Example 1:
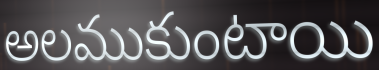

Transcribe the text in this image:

అలముకుంటాయి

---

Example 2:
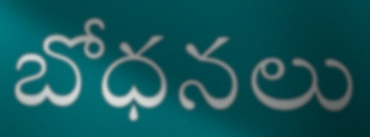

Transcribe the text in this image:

బోధనలు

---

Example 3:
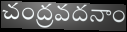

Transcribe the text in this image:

చంద్రవదనాం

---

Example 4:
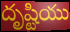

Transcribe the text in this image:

దృష్టియు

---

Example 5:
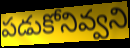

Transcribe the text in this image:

పడుకోనివ్వని